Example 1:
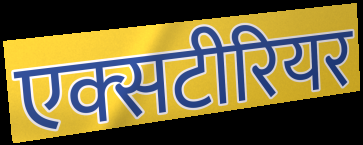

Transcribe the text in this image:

एक्‍सटीरियर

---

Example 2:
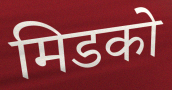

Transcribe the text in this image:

मिडको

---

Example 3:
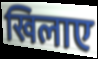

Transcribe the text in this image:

खिलाए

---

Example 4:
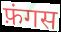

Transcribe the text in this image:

फ़ंगस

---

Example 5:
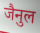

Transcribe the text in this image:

जैनुल